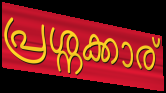
പ്രശ്നക്കാര്